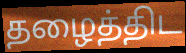
தழைத்திட